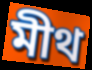
মীথ